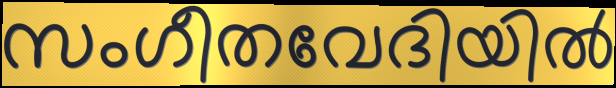
സംഗീതവേദിയിൽ